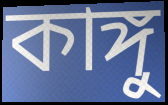
কাঙ্গু